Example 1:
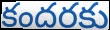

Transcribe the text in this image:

కందరకు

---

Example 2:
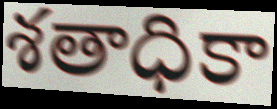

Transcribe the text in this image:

శతాధికా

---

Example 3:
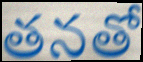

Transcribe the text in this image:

తనతో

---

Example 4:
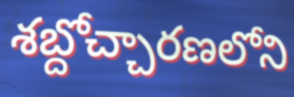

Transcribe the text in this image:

శబ్దోచ్చారణలోని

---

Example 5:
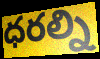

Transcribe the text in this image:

ధరల్ని